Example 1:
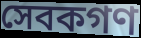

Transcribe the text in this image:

সেবকগণ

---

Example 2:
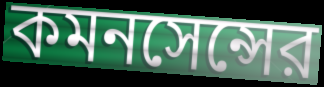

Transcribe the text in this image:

কমনসেন্সের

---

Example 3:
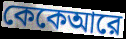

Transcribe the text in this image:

কেকেআরে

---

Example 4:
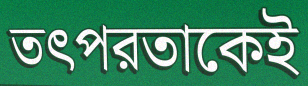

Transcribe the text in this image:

তৎপরতাকেই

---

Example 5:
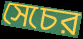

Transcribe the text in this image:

সেচের